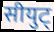
सीयुट्